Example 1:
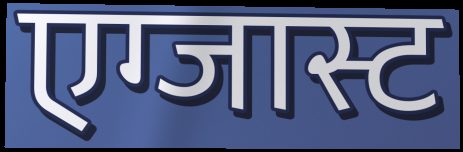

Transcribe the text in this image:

एग्जास्ट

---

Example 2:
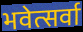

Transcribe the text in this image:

भवेत्सर्वा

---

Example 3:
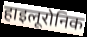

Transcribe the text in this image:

हाइलूरोनिक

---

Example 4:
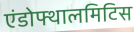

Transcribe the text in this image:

एंडोफ्थालमिटिस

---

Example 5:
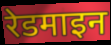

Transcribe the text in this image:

रेडमाइन